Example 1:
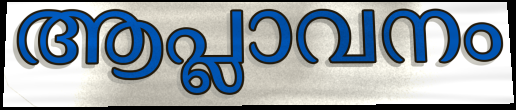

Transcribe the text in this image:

ആപ്ലാവനം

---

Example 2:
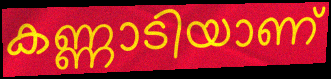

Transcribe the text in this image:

കണ്ണാടിയാണ്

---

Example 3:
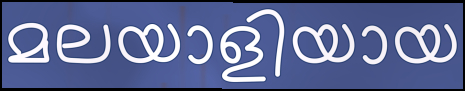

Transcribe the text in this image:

മലയാളിയായ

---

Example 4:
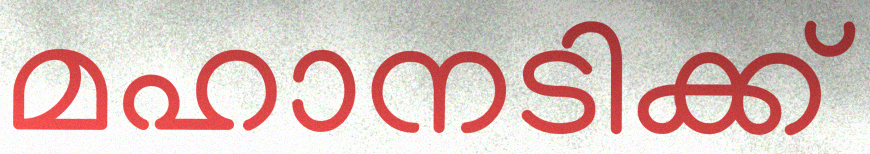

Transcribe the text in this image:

മഹാനടിക്ക്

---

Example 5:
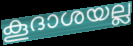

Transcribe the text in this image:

കൂദാശയല്ല